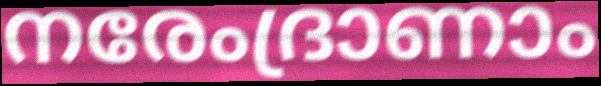
നരേംദ്രാണാം